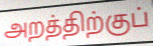
அறத்திற்குப்